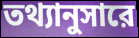
তথ্যানুসারে